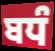
ਬਧੰ